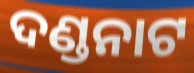
ଦଣ୍ଡନାଟ